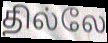
தில்லே